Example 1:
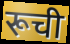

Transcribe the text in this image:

रूची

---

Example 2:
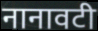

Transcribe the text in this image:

नानावटी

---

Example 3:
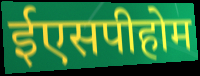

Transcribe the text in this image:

ईएसपीहोम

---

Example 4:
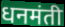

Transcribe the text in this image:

धनमंती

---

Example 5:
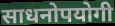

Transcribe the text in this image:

साधनोपयोगी